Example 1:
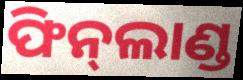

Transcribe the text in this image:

ଫିନ୍‌ଲାଣ୍ଡ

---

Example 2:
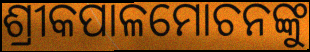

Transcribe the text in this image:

ଶ୍ରୀକପାଳମୋଚନଙ୍କୁ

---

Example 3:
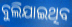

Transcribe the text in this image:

ବୁଲିଯାଇଥିବ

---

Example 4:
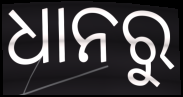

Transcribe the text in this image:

ଧାନରୁ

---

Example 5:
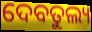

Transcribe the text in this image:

ଦେବତୁଲ୍ୟ